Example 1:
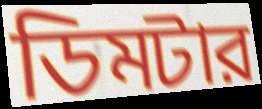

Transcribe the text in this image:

ডিমটার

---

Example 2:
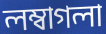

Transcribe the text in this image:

লম্বাগলা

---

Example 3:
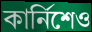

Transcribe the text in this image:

কার্নিশেও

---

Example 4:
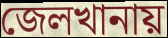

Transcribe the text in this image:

জেলখানায়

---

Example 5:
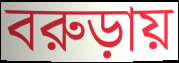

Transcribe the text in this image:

বরুড়ায়